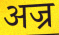
अज्र